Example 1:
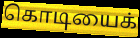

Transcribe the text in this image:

கொடியைக்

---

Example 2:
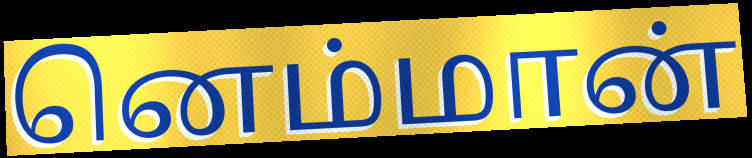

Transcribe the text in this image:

னெம்மான்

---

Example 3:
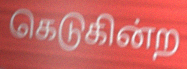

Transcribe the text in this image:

கெடுகின்ற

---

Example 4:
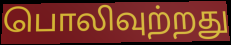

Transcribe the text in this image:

பொலிவுற்றது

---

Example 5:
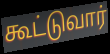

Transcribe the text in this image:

கூட்டுவார்